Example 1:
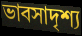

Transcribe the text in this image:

ভাবসাদৃশ্য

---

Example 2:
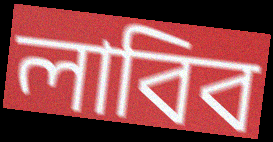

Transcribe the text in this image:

লাবিব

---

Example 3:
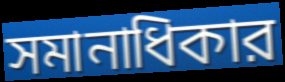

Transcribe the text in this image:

সমানাধিকার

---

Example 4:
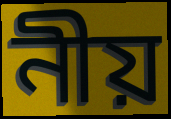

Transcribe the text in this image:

নীয়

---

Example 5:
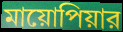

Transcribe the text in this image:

মায়োপিয়ার